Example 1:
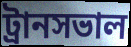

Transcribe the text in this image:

ট্রানসভাল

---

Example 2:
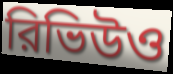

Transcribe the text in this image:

রিভিউও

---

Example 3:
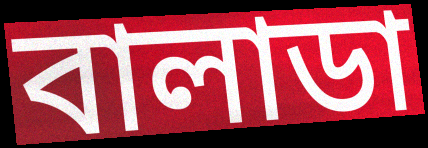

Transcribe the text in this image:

বালাডা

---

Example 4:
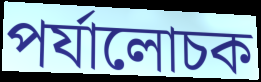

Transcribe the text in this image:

পর্যালোচক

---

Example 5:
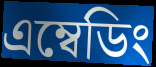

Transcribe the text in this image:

এম্বেডিং